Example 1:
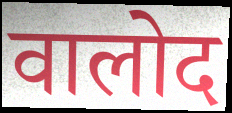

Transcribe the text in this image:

वालोद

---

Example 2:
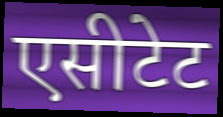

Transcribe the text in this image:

एसीटेट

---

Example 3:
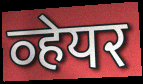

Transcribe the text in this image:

व्हेयर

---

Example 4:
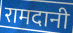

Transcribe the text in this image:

रामदानी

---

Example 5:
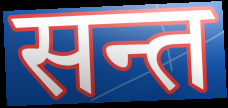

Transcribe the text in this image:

सन्‍त